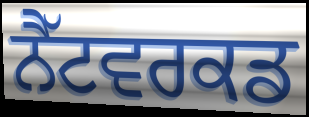
ਨੈੱਟਵਰਕਡ